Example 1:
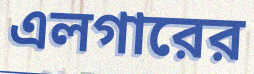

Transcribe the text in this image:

এলগারের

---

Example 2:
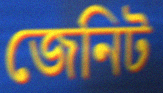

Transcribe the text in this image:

জেনিট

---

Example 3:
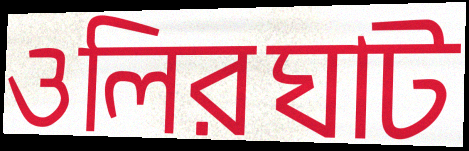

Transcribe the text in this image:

ওলিরঘাট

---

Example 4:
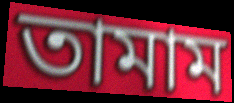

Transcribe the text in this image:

তামাম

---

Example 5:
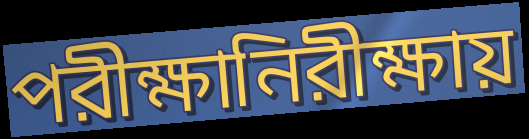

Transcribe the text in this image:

পরীক্ষানিরীক্ষায়